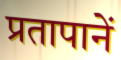
प्रतापानें